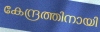
കേന്ദ്രത്തിനായി